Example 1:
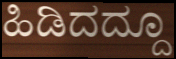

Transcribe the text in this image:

ಹಿಡಿದದ್ದೂ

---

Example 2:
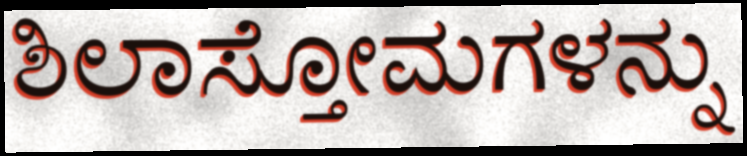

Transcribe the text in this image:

ಶಿಲಾಸ್ತೋಮಗಳನ್ನು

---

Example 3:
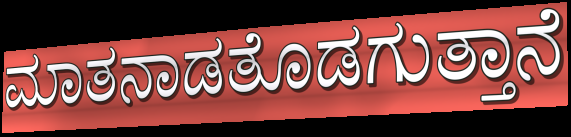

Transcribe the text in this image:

ಮಾತನಾಡತೊಡಗುತ್ತಾನೆ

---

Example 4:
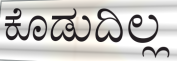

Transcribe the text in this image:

ಕೊಡುದಿಲ್ಲ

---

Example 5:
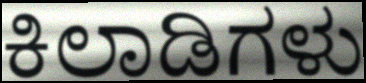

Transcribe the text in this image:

ಕಿಲಾಡಿಗಳು